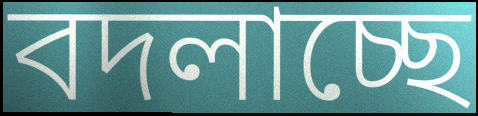
বদলাচ্ছে